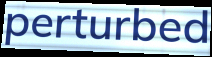
perturbed